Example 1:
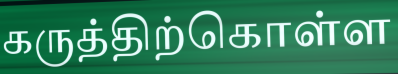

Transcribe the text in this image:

கருத்திற்கொள்ள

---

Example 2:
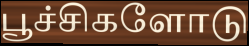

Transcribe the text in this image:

பூச்சிகளோடு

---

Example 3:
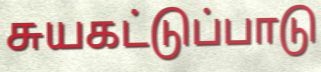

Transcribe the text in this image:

சுயகட்டுப்பாடு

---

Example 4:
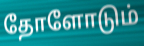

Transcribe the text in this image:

தோளோடும்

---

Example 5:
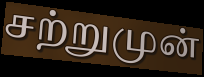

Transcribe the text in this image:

சற்றுமுன்